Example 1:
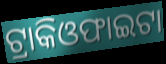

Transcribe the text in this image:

ଟ୍ରାକିଓଫାଇଟା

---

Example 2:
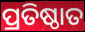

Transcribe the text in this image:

ପ୍ରତିଷ୍ଠାତ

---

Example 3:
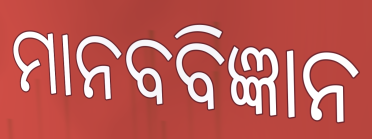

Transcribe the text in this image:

ମାନବବିଜ୍ଞାନ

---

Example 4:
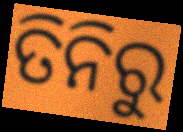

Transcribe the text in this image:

ତିନିରୁ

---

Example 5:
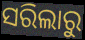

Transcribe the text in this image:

ସରିଲାରୁ